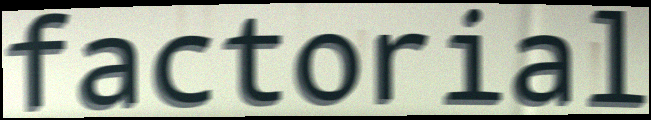
factorial